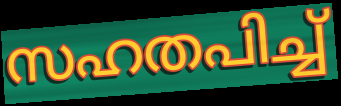
സഹതപിച്ച്